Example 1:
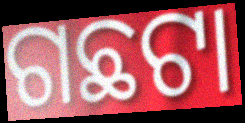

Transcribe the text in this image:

ଗଛଟା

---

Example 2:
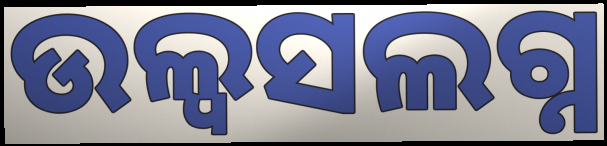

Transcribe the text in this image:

ଉଲ୍ୱସଲଗ୍ନ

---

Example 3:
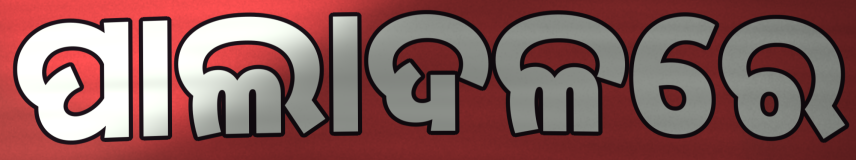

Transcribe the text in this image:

ପାଲାଦଳରେ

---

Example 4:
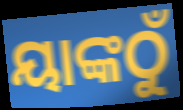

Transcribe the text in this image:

ୟାଙ୍କଠୁଁ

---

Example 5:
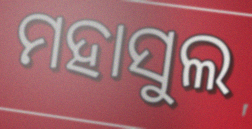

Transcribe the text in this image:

ମହାସୁଲ